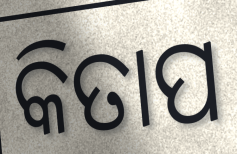
କିତାପ